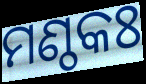
ମଣ୍ଠକଃ